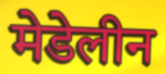
मेडेलीन